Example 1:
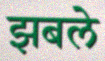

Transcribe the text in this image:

झबले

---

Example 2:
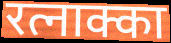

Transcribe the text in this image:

रत्नाक्का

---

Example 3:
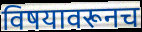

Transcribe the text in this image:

विषयावरूनच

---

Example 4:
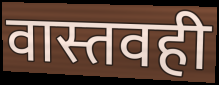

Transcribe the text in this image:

वास्तवही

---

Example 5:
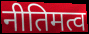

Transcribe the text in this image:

नीतिमत्व